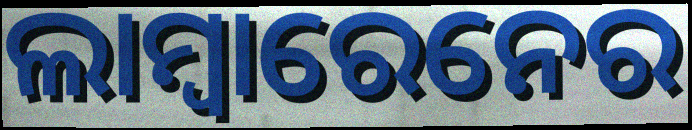
ଲାମ୍ବାରେନେର